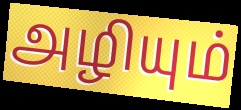
அழியும்